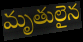
మృతులైన